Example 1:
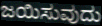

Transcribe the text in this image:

ಜಯಿಸುವುದು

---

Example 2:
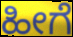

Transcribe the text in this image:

ಹೀಗೆ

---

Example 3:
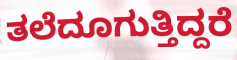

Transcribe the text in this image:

ತಲೆದೂಗುತ್ತಿದ್ದರೆ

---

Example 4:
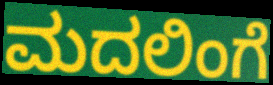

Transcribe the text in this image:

ಮದಲಿಂಗೆ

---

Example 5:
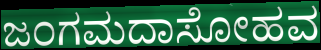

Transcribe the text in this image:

ಜಂಗಮದಾಸೋಹವ